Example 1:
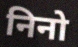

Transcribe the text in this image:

निनो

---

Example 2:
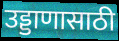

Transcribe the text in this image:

उड्डाणासाठी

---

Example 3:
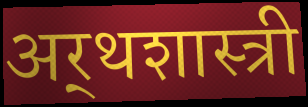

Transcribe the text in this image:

अर्थशास्त्री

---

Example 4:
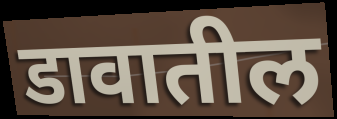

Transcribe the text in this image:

डावातील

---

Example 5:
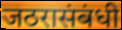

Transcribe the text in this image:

जठरासंबंधी